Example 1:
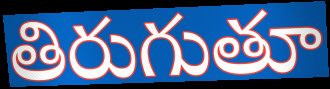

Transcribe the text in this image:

తిరుగుతూ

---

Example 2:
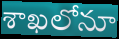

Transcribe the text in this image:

శాఖలోనూ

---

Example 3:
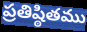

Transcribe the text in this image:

ప్రతిష్ఠితము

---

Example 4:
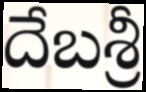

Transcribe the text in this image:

దేబశ్రీ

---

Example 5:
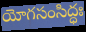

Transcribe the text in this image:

యోగసంసిద్ధః